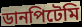
ডানপিটেমি